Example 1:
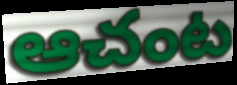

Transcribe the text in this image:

ఆచంట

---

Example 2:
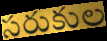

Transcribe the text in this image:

సరుకుల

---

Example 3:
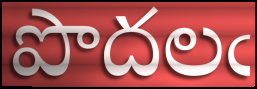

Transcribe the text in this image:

పొదలఁ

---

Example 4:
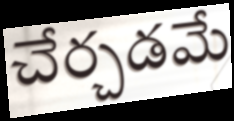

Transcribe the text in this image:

చేర్చడమే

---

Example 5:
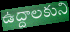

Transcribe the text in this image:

ఉద్దాలకుని